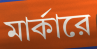
মার্কারে